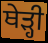
ਥੇੜ੍ਹੀ